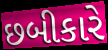
છબીકારે